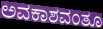
ಅವಕಾಶವಂತೂ